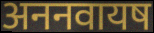
अननवायष